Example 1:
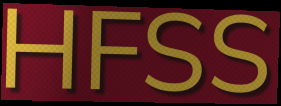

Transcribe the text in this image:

HFSS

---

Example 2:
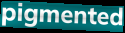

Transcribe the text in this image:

pigmented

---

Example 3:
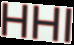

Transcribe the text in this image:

HHI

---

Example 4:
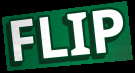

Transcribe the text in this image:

FLIP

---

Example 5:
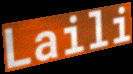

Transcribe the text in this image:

Laili